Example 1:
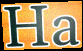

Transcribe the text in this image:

Ha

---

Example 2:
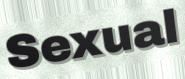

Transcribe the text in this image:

Sexual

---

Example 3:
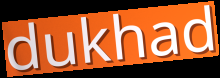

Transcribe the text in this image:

dukhad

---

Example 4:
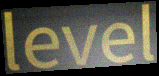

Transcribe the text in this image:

level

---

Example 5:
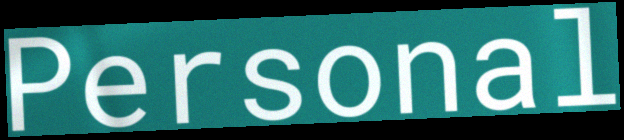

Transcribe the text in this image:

Personal